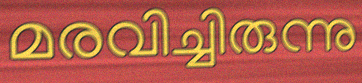
മരവിച്ചിരുന്നു